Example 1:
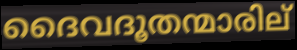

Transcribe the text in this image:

ദൈവദൂതന്മാരില്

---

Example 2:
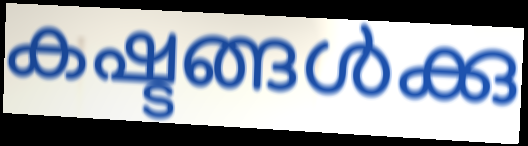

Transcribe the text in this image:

കഷ്ടങ്ങൾക്കു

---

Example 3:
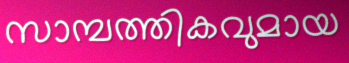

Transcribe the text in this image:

സാമ്പത്തികവുമായ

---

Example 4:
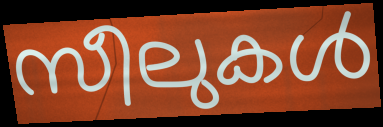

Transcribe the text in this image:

സീലുകൾ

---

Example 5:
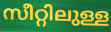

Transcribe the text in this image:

സീറ്റിലുള്ള